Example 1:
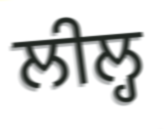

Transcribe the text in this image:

ਲੀਲ੍ਹ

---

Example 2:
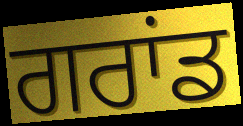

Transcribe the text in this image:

ਗਰਾਂਡ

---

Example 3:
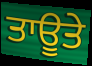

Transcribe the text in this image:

ਤਾਊਤੇ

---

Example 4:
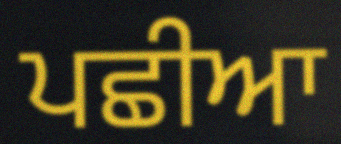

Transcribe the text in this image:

ਪਛੀਆ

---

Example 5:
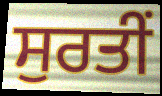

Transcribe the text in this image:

ਸੁਰਤੀਂ